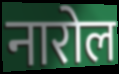
नारोल